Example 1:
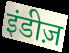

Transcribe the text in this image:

इंडीज़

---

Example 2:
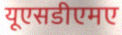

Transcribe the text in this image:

यूएसडीएमए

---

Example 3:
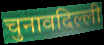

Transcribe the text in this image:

चुनावदिल्ली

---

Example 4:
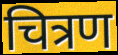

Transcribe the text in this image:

चित्रण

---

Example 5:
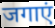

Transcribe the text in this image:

जगाएं